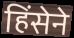
हिंसेने